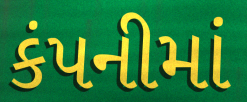
કંપનીમાં